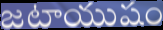
జటాయుషం